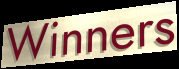
Winners